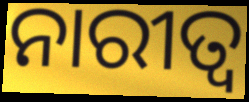
ନାରୀତ୍ୱ